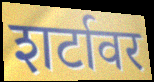
शर्टावर